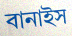
বানাইস